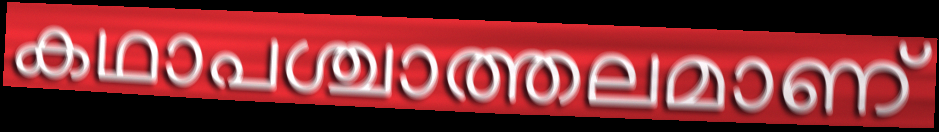
കഥാപശ്ചാത്തലമാണ്